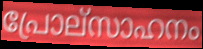
പ്രോല്സാഹനം